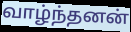
வாழ்ந்தனன்